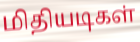
மிதியடிகள்